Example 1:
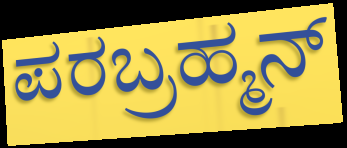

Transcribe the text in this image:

ಪರಬ್ರಹ್ಮನ್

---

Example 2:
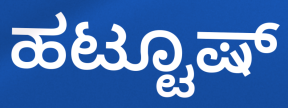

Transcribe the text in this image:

ಹಟ್ಟೂಷ್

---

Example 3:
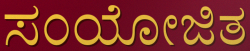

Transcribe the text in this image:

ಸಂಯೋಜಿತ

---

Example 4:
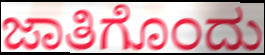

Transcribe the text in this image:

ಜಾತಿಗೊಂದು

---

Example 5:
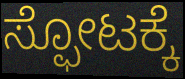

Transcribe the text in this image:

ಸ್ಫೋಟಕ್ಕೆ